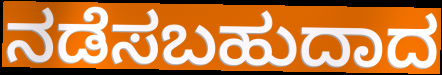
ನಡೆಸಬಹುದಾದ